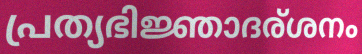
പ്രത്യഭിജ്ഞാദര്ശനം